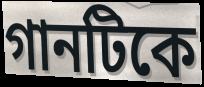
গানটিকে